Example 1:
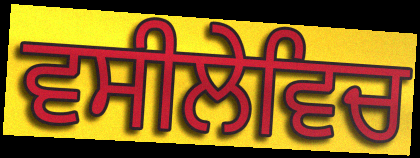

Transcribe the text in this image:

ਵਸੀਲੇਵਿਚ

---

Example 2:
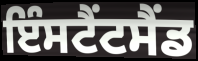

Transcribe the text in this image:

ਇੰਸਟੈਂਟਸੈਂਡ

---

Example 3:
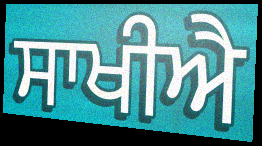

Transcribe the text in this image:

ਸਾਖੀਐ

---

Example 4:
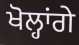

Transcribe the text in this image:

ਖੋਲ੍ਹਾਂਗੇ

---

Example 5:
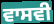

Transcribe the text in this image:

ਵਾਸਵੀ